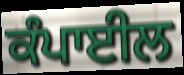
ਕੰਪਾਈਲ